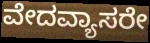
ವೇದವ್ಯಾಸರೇ